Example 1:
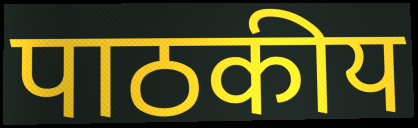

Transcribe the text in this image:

पाठकीय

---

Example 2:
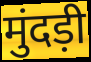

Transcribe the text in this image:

मुंदड़ी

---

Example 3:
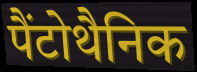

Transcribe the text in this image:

पैंटोथैनिक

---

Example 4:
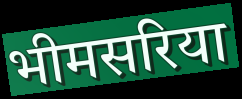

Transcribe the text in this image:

भीमसरिया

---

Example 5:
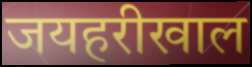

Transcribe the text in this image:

जयहरीखाल